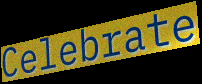
Celebrate